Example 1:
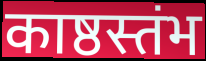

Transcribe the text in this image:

काष्ठस्तंभ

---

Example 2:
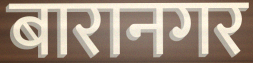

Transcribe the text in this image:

बारानगर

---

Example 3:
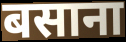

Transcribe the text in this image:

बसाना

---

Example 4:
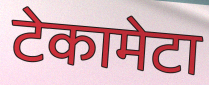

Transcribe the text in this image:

टेकामेटा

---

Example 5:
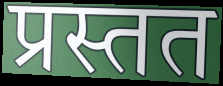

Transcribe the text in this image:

प्रस्तत